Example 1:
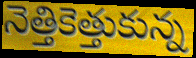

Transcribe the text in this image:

నెత్తికెత్తుకున్న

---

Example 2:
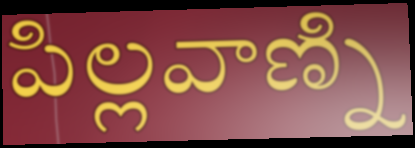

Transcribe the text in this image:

పిల్లవాణ్ని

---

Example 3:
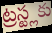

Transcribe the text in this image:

ట్రస్ట్లకు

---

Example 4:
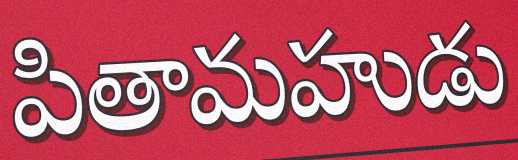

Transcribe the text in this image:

పితామహుడు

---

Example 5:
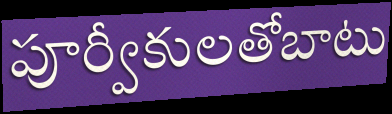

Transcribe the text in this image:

పూర్వీకులతోబాటు